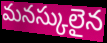
మనస్కులైన